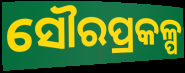
ସୌରପ୍ରକଳ୍ପ